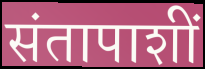
संतापाशीं